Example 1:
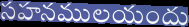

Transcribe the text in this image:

సహనములయందు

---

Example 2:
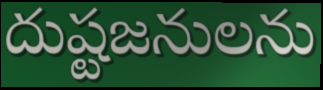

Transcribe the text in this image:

దుష్టజనులను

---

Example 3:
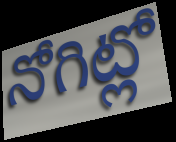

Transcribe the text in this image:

నోగిట్లో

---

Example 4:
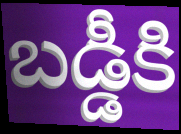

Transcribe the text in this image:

బడ్డీకి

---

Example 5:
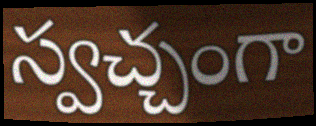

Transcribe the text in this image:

స్వచ్చంగా